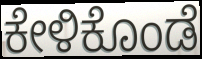
ಕೇಳಿಕೊಂಡೆ